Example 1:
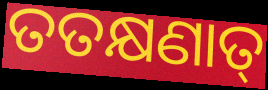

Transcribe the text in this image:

ତତକ୍ଷଣାତ୍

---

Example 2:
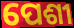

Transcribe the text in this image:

ପେଶୀ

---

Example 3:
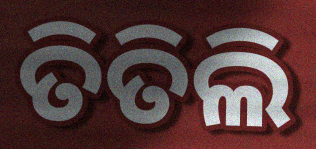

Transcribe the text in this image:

ତିତିଲି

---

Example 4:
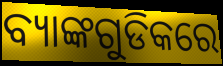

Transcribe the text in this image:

ବ୍ୟାଙ୍କଗୁଡିକରେ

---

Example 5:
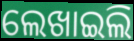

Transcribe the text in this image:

ଲେଖାଇଲି